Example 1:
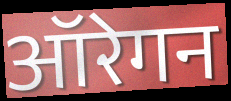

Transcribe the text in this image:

ऑरेगन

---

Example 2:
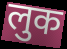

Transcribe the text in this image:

लुक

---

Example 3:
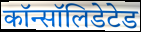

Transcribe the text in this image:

कॉन्सॉलिडेटेड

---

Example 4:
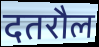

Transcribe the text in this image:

दतरौल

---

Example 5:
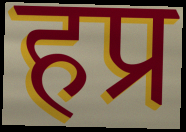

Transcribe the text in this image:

हप्र